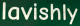
lavishly